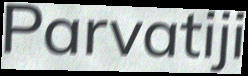
Parvatiji